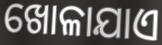
ଖୋଳାଯାଏ